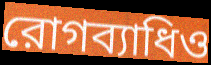
রোগব্যাধিও